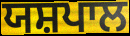
ਯਸ਼ਪਾਲ